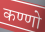
कण्णो